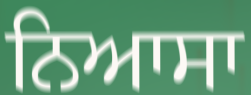
ਨਿਆਸਾ